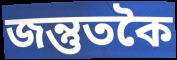
জন্তুতকৈ